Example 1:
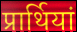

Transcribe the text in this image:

प्रार्थियां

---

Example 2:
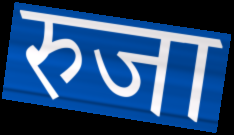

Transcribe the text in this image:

रुजा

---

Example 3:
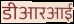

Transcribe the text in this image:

डीआरआई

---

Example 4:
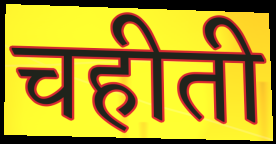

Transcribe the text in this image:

चहीती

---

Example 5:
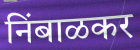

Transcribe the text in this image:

निंबाळकर